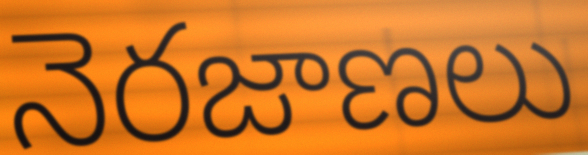
నెరజాణలు